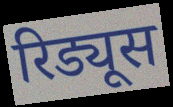
रिड्यूस